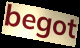
begot